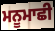
ਮਨੂਮਾਛੀ